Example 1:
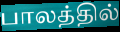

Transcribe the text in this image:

பாலத்தில்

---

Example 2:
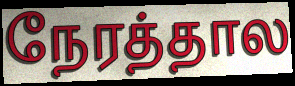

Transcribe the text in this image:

நேரத்தால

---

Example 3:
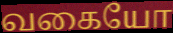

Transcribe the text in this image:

வகையோ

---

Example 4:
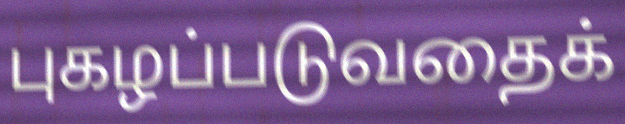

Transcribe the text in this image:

புகழப்படுவதைக்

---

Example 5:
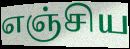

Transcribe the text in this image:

எஞ்சிய